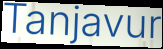
Tanjavur